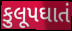
કુલૂપઘાતં